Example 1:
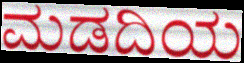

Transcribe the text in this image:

ಮಡದಿಯ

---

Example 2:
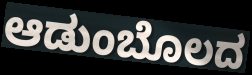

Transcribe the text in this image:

ಆಡುಂಬೊಲದ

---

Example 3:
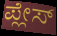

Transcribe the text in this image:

ಪ್ಲೇಸ್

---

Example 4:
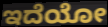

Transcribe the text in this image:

ಇದೆಯೋ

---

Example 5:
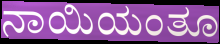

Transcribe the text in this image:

ನಾಯಿಯಂತೂ